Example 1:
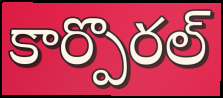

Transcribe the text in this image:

కార్పొరల్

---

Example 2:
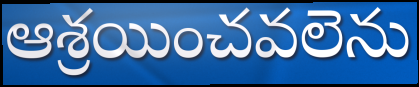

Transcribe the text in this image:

ఆశ్రయించవలెను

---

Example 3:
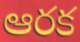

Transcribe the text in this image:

ఆరక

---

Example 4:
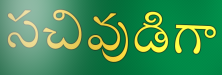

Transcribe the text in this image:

సచివుడిగా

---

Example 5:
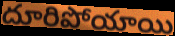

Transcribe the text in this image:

దూరిపోయాయి